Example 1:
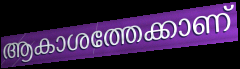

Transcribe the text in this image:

ആകാശത്തേക്കാണ്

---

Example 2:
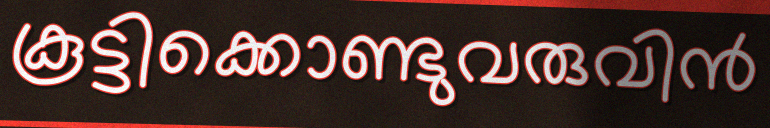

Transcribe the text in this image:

കൂട്ടിക്കൊണ്ടുവരുവിൻ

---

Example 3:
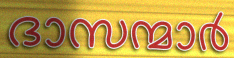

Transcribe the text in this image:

ദാസന്മാർ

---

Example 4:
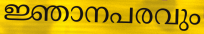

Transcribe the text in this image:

ജ്ഞാനപരവും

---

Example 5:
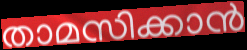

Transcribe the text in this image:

താമസിക്കാൻ